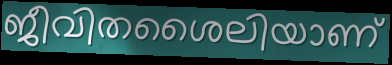
ജീവിതശൈലിയാണ്